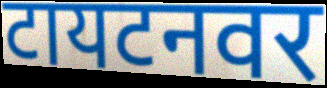
टायटनवर